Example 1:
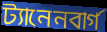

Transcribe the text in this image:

ট্যানেনবার্গ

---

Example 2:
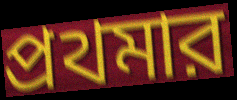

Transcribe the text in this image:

প্রথমার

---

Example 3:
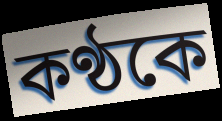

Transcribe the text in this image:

কণ্ঠকে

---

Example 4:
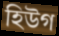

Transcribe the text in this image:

হিউগ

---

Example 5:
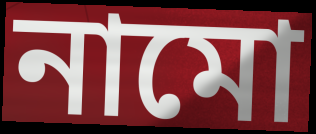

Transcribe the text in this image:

নামো